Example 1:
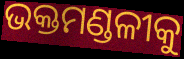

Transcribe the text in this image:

ଭକ୍ତମଣ୍ଡଳୀକୁ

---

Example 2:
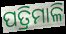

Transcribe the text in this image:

ପତ୍ରିମାଳି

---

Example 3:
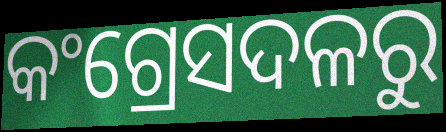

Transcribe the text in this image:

କଂଗ୍ରେସଦଳରୁ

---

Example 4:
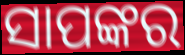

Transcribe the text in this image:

ସାପଙ୍କର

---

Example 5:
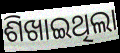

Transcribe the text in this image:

ଶିଖାଇଥିଲା